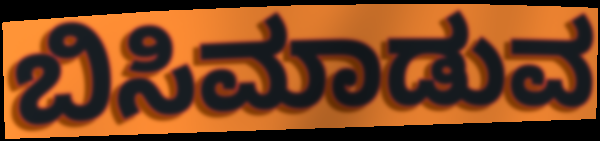
ಬಿಸಿಮಾಡುವ